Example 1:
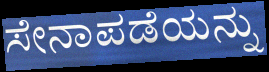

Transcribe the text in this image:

ಸೇನಾಪಡೆಯನ್ನು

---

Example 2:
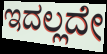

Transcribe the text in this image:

ಇದಲ್ಲದೇ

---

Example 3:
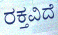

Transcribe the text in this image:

ರಕ್ತವಿದೆ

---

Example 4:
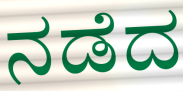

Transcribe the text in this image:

ನಡೆದ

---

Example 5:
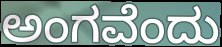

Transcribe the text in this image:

ಅಂಗವೆಂದು